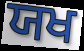
ਯਖ